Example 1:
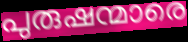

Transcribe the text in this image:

പുരുഷന്മാരെ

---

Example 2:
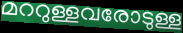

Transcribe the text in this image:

മററുള്ളവരോടുള്ള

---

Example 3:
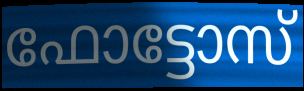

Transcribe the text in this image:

ഫോട്ടോസ്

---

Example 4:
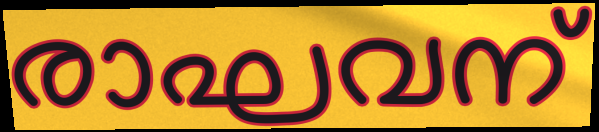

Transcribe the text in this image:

രാഘവന്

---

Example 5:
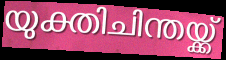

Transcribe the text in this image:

യുക്തിചിന്തയ്ക്ക്